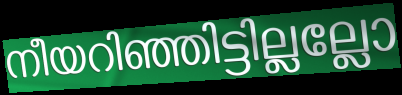
നീയറിഞ്ഞിട്ടില്ലല്ലോ